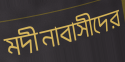
মদীনাবাসীদের